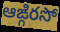
ఆఙ్గిరసో